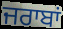
ਜਰਾਬਾਂ